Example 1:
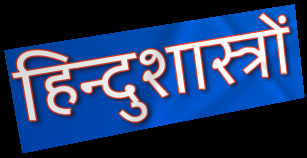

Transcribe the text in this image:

हिन्दुशास्त्रों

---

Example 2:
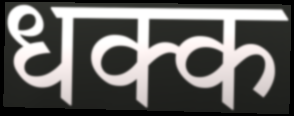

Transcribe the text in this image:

धक्क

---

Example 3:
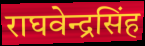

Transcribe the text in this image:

राघवेन्द्रसिंह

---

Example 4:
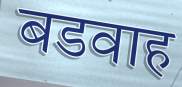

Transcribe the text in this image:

बडवाह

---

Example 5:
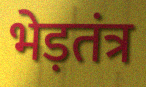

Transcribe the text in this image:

भेड़तंत्र